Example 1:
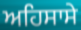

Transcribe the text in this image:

ਅਹਿਸਾਸੇ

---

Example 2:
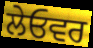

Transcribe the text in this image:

ਲੇਓਵਰ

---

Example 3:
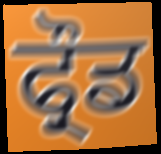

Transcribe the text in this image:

ਫ੍ਰੌਡ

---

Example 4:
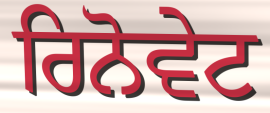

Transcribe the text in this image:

ਰਿਨੋਵੇਟ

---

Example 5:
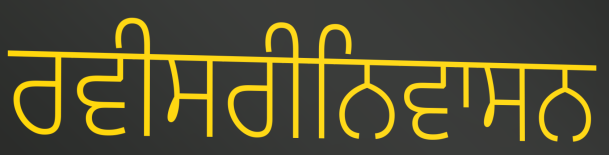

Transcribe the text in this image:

ਰਵੀਸਰੀਨਿਵਾਸਨ